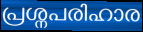
പ്രശ്നപരിഹാര